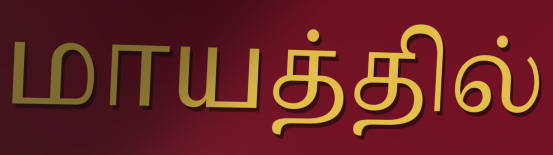
மாயத்தில்